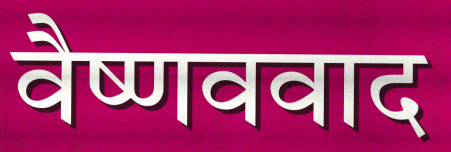
वैष्णववाद